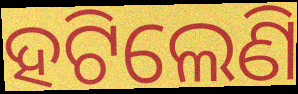
ହଟିଲେଣି